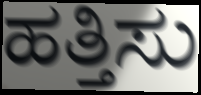
ಹತ್ತಿಸು